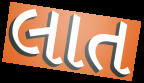
લાત